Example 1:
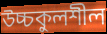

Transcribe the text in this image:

উচ্চকুলশীল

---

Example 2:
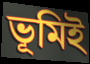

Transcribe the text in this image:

ভূমিই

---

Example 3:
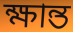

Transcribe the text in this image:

ক্ষান্ত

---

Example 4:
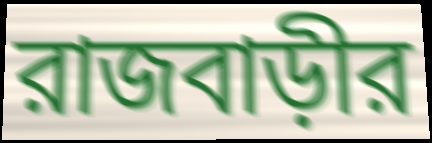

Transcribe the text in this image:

রাজবাড়ীর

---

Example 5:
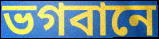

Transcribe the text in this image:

ভগবানে